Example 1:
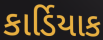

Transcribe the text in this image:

કાર્ડિયાક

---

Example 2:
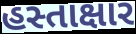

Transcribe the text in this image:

હસ્તાક્ષાર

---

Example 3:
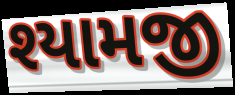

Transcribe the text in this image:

શ્યામજી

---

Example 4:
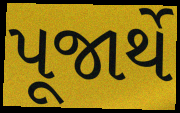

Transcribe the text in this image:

પૂજાર્થે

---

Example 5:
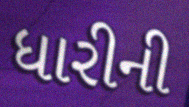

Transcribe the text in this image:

ધારીની